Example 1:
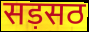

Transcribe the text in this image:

सड़सठ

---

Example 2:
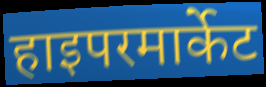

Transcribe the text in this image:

हाइपरमार्केट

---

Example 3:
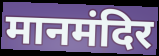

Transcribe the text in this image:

मानमंदिर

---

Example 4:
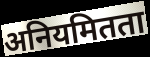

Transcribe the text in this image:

अनियमितता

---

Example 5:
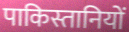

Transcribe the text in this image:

पाकिस्तानियों